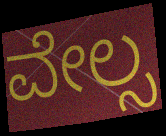
ವೇಲ್ಸ